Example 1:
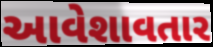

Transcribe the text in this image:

આવેશાવતાર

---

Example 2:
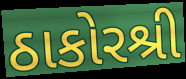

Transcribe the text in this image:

ઠાકોરશ્રી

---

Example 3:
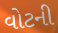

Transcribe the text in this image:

વોટની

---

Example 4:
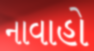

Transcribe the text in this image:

નાવાહો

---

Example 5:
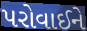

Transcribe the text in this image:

પરોવાઈને